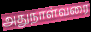
அதுநாள்வரை